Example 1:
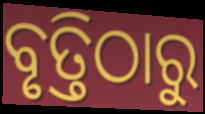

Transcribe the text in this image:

ବୃତ୍ତିଠାରୁ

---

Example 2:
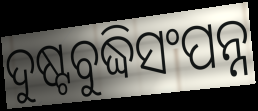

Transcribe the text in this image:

ଦୁଷ୍ଟବୁଦ୍ଧିସଂପନ୍ନ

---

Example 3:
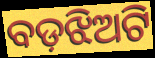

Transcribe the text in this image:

ବଡ଼ଝିଅଟି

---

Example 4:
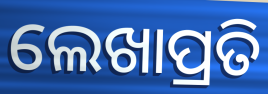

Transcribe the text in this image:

ଲେଖାପ୍ରତି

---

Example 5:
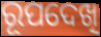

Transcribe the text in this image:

ରୂପଦେଖି